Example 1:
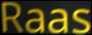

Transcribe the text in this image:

Raas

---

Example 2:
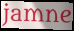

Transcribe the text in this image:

jamne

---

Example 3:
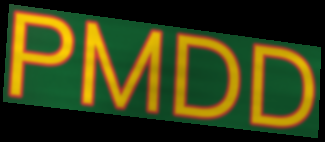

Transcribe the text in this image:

PMDD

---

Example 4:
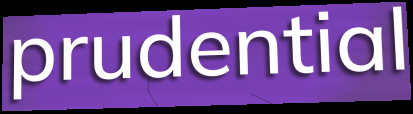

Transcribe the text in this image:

prudential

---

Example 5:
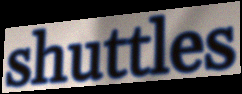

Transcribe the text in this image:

shuttles